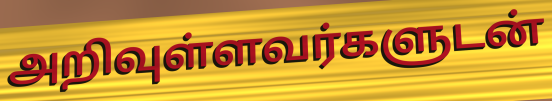
அறிவுள்ளவர்களுடன்